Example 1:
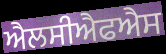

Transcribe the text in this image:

ਐਲਸੀਐਫਐਸ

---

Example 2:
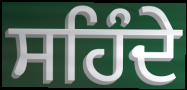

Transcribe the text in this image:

ਸਹਿੰਦੇ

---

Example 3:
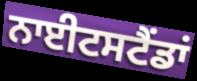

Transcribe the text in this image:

ਨਾਈਟਸਟੈਂਡਾਂ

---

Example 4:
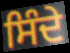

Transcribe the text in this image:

ਸਿੰਦੇ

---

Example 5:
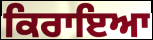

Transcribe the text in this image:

ਕਿਰਾਇਆ